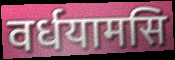
वर्धयामसि